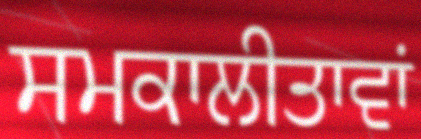
ਸਮਕਾਲੀਤਾਵਾਂ